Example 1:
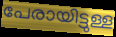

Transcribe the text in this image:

പേരായിട്ടുള്ള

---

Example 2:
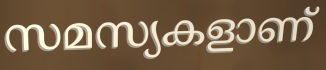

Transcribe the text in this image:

സമസ്യകളാണ്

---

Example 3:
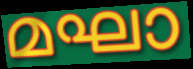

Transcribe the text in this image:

മഘാ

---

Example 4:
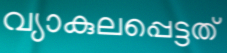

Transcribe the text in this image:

വ്യാകുലപ്പെട്ടത്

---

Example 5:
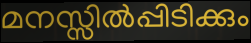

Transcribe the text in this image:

മനസ്സിൽപ്പിടിക്കും